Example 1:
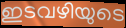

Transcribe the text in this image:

ഇടവഴിയുടെ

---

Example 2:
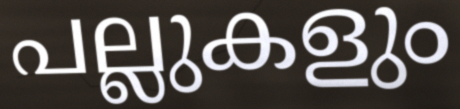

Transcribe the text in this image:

പല്ലുകളും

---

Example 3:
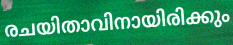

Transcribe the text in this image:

രചയിതാവിനായിരിക്കും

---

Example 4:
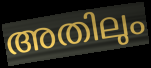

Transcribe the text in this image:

അതിലും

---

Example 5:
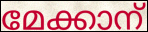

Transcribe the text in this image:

മേക്കാന്